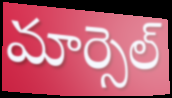
మార్సెల్